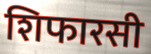
शिफारसी